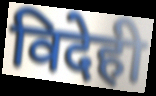
विदेही